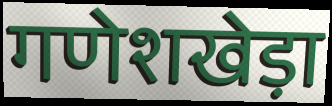
गणेशखेड़ा